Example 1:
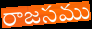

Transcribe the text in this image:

రాజసము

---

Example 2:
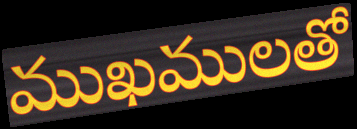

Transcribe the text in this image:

ముఖములతో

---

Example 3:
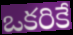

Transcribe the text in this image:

ఒకరికే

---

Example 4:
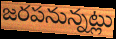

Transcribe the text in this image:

జరపనున్నట్లు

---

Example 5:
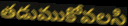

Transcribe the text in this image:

తడుముకోవలసి